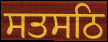
ਸਤਸਠਿ